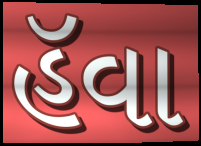
હૅવા